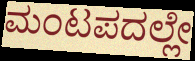
ಮಂಟಪದಲ್ಲೇ